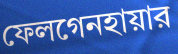
ফেলগেনহায়ার